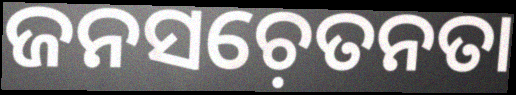
ଜନସଚ଼େତନତା